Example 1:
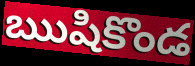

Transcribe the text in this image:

ఋషికొండ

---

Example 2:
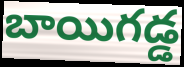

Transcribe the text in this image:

బాయిగడ్డ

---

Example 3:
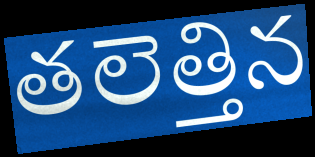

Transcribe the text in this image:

తలెత్తిన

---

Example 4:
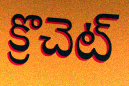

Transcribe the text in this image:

క్రొచెట్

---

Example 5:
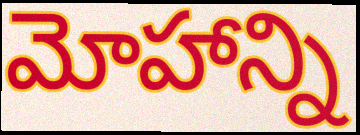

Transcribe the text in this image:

మోహాన్ని